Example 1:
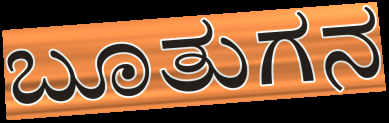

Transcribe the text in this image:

ಬೂತುಗನ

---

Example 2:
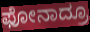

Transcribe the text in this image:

ಫೋನಾದ್ರೂ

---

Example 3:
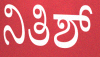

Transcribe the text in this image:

ನಿತಿಶ್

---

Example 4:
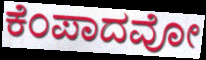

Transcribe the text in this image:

ಕೆಂಪಾದವೋ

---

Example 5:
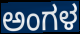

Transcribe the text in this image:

ಅಂಗಳ